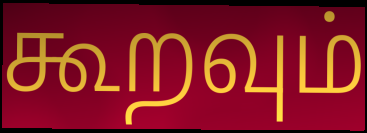
கூறவும்